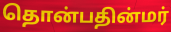
தொன்பதின்மர்